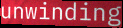
unwinding